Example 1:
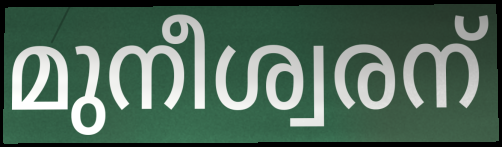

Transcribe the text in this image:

മുനീശ്വരന്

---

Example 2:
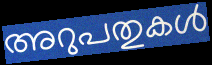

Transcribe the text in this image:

അറുപതുകൾ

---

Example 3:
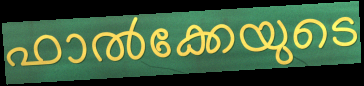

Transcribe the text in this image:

ഫാൽക്കേയുടെ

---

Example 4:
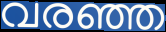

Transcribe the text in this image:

വരഞ്ഞ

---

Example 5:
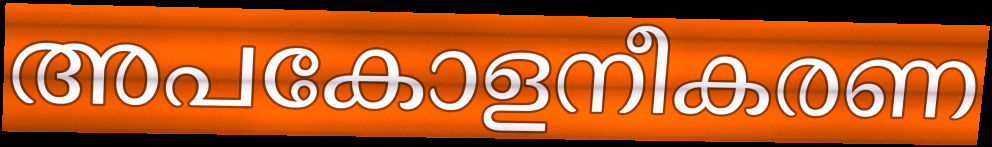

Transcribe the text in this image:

അപകോളനീകരണ